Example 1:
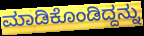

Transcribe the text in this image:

ಮಾಡಿಕೊಂಡಿದ್ದನ್ನು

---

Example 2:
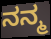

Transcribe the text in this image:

ನನ್ಮ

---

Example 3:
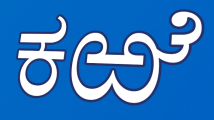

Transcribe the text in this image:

ಕಱೆ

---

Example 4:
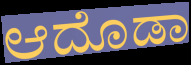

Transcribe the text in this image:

ಆದೊಡಾ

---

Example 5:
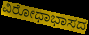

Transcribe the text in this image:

ವಿರೋಧಾಭಾಸದ